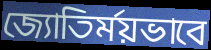
জ্যোতির্ময়ভাবে